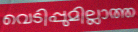
വെടിപ്പുമില്ലാത്ത